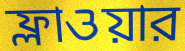
ফ্লাওয়ার